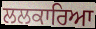
ਲਲਕਾਰਿਆ